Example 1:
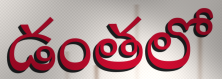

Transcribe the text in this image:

డంతలో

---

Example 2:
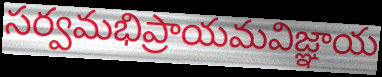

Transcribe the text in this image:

సర్వమభిప్రాయమవిజ్ఞాయ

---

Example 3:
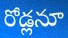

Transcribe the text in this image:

రోడ్లనూ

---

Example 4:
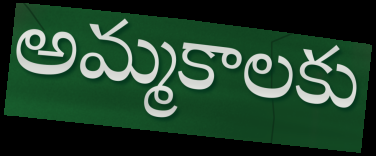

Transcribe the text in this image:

అమ్మకాలకు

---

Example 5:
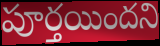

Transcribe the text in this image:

పూర్తయిందని